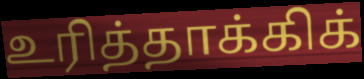
உரித்தாக்கிக்